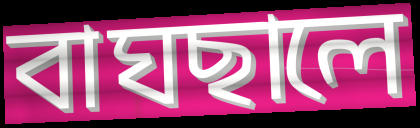
বাঘছালে